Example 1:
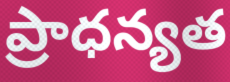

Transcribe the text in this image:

ప్రాధన్యత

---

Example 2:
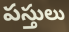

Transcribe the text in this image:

పస్తులు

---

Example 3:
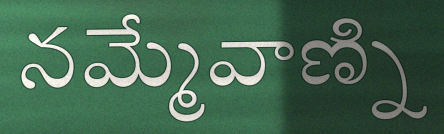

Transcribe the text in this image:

నమ్మేవాణ్ని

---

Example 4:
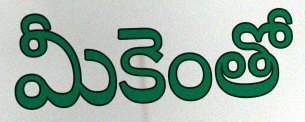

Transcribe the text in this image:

మీకెంతో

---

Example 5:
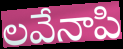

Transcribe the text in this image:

లవేనాపి